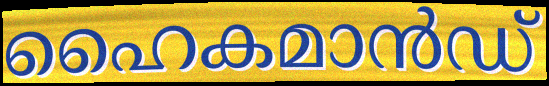
ഹൈകമാൻഡ്